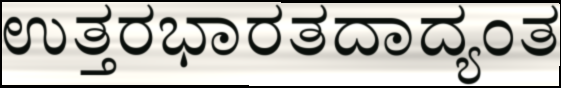
ಉತ್ತರಭಾರತದಾದ್ಯಂತ